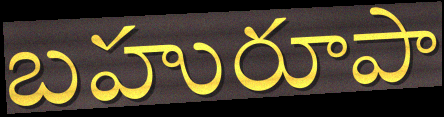
బహురూపా